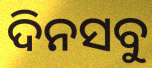
ଦିନସବୁ